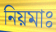
নিয়মাঃ